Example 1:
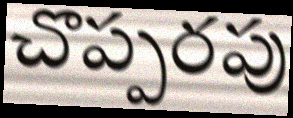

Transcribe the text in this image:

చొప్పరపు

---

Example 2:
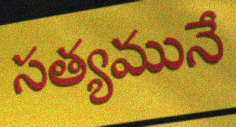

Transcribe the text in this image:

సత్యమునే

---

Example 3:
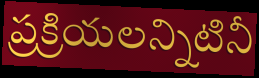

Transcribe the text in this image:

ప్రక్రియలన్నిటినీ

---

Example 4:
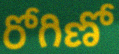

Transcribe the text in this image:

రోగిణో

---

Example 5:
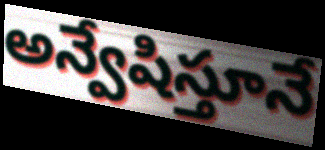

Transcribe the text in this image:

అన్వేషిస్తూనే